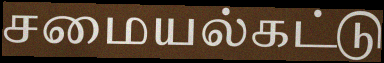
சமையல்கட்டு